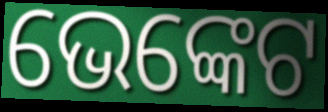
ଭେଙ୍କେଟ